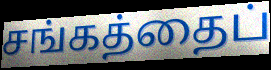
சங்கத்தைப்